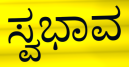
ಸ್ವಭಾವ